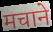
मचाने